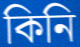
কিনি